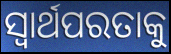
ସ୍ଵାର୍ଥପରତାକୁ